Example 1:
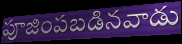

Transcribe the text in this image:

పూజింపబడినవాడు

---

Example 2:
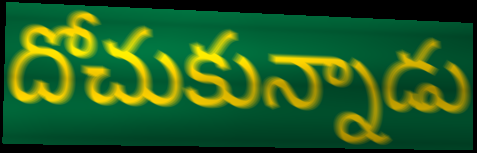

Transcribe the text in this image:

దోచుకున్నాడు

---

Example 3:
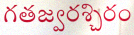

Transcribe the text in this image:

గతజ్వరశ్చిరం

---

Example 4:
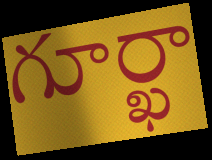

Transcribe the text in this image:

గూర్ఖా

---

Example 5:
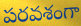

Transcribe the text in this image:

పరవశంగా